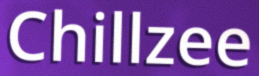
Chillzee